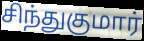
சிந்துகுமார்